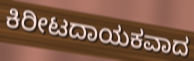
ಕಿರೀಟದಾಯಕವಾದ